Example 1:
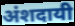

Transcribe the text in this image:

अंशदायी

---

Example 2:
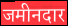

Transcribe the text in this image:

जमीनदार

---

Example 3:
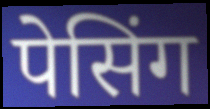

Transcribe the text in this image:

पेसिंग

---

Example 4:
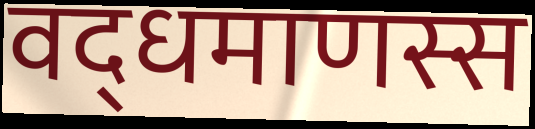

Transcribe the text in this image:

वद्धमाणस्स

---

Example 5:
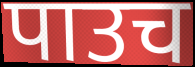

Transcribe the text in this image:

पाउच